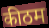
कीठम